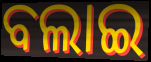
ବଲାଇ